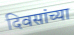
दिवसांच्या